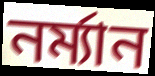
নর্ম্যান